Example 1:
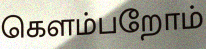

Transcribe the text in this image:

கெளம்பறோம்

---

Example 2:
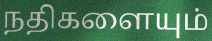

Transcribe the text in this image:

நதிகளையும்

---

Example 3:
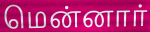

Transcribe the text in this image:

மென்னார்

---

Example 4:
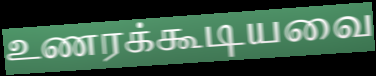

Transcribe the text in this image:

உணரக்கூடியவை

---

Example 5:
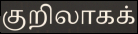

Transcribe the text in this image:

குறிலாகக்